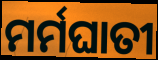
ମର୍ମଘାତୀ